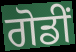
ਗੋਡੀਂ